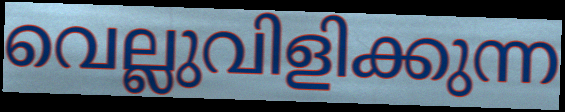
വെല്ലുവിളിക്കുന്ന